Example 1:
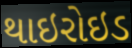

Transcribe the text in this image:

થાઇરોઇડ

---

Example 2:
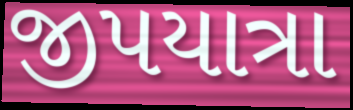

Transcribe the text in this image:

જીપયાત્રા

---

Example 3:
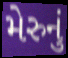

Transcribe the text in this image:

મેરુનું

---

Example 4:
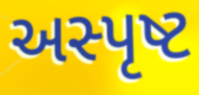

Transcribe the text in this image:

અસ્પૃષ્ટ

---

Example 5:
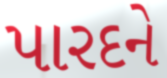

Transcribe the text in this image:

પારદને